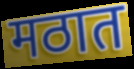
मठात